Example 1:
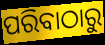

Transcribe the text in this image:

ପରିବାଠାରୁ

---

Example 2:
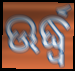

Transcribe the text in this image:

ଊର୍ଦ୍ଧ୍ବ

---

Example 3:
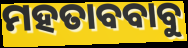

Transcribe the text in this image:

ମହତାବବାବୁ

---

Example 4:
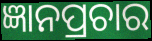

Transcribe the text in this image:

ଜ୍ଞାନପ୍ରଚାର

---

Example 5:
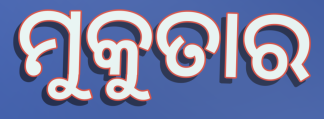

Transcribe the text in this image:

ମୁକୁତାର